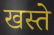
खस्ते